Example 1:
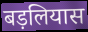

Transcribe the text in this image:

बड़लियास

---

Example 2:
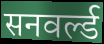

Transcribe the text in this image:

सनवर्ल्ड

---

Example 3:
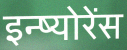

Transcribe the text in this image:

इन्ष्योरेंस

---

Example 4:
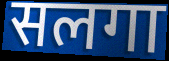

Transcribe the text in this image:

सलगा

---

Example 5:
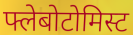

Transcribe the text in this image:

फ्लेबोटोमिस्ट